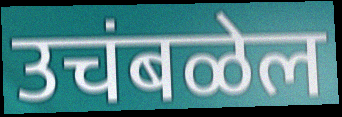
उचंबळेल